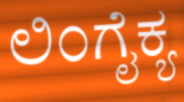
ಲಿಂಗೈಕ್ಯ